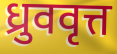
ध्रुववृत्त